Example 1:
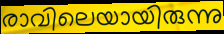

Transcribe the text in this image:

രാവിലെയായിരുന്നു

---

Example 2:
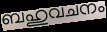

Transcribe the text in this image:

ബഹുവചനം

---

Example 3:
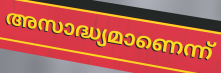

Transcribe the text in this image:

അസാദ്ധ്യമാണെന്ന്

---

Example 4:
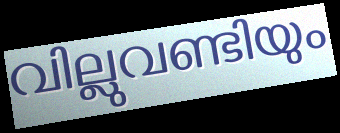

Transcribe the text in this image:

വില്ലുവണ്ടിയും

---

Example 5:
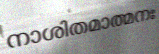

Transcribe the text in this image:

നാശിതമാത്മനഃ